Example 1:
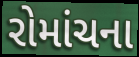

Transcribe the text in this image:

રોમાંચના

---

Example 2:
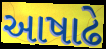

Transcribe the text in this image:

આષાઢે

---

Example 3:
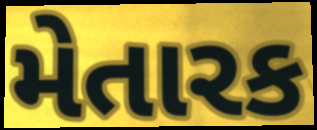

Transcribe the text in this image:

મેતારક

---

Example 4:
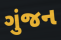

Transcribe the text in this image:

ગુંજન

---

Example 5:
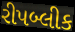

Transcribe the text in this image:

રીપબ્લીક